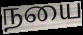
நயை